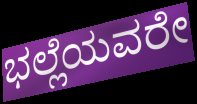
ಭಲ್ಲೆಯವರೇ